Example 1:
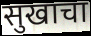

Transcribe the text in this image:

सुखाचा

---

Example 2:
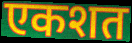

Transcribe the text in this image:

एकशत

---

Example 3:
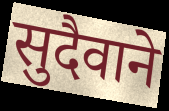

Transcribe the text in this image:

सुदैवाने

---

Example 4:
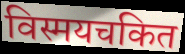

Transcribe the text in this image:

विस्मयचकित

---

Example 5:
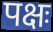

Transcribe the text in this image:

पक्षः